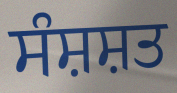
ਸੰਸ਼ਸ਼ਤ